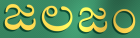
జలజం